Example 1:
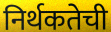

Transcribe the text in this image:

निर्थकतेची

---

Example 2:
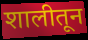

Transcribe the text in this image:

शालीतून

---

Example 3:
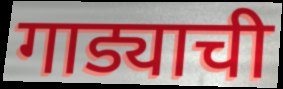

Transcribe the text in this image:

गाड्याची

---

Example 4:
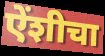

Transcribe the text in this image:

ऐंशीचा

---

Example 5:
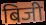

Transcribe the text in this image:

बिजी